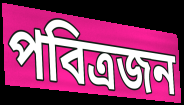
পবিত্রজন